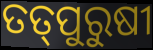
ତତ୍‌ପୁରୁଷୀ